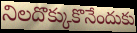
నిలదొక్కుకొనేందుకు